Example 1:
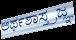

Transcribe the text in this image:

ಅರ್ಥಶಾಸ್ತ್ರಜ್ಞ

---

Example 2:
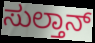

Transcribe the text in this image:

ಸುಲ್ತಾನ್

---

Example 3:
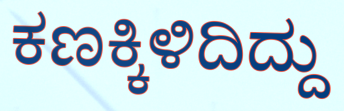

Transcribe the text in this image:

ಕಣಕ್ಕಿಳಿದಿದ್ದು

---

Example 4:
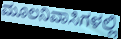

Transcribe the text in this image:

ಮೂಲನಿವಾಸಿಗಳಲ್ಲಿ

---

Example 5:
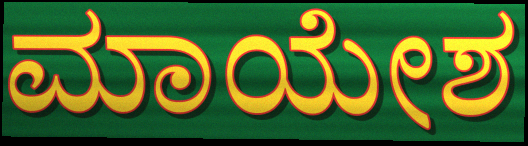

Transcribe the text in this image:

ಮಾಯೇಶ